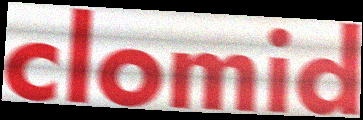
clomid